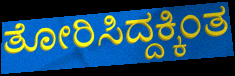
ತೋರಿಸಿದ್ದಕ್ಕಿಂತ